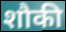
शौकी